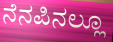
ನೆನಪಿನಲ್ಲೂ